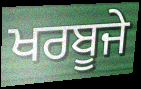
ਖਰਬੂਜੇ